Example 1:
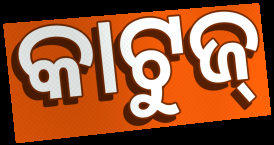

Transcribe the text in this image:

କାଟୁଜ୍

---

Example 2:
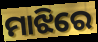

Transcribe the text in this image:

ମାଝିରେ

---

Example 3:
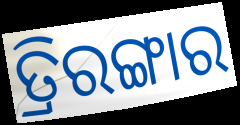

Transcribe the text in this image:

ତ୍ରିରଙ୍ଗାର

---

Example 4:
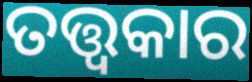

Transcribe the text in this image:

ତତ୍ତ୍ୱକାର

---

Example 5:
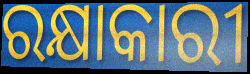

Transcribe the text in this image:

ରକ୍ଷାକାରୀ